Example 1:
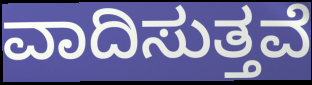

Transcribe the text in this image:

ವಾದಿಸುತ್ತವೆ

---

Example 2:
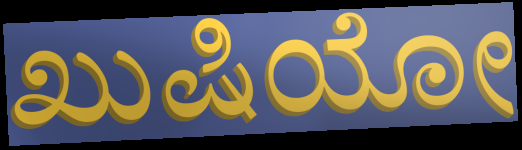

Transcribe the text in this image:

ಖುಷಿಯೋ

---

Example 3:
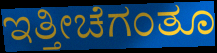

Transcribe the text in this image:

ಇತ್ತೀಚೆಗಂತೂ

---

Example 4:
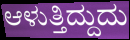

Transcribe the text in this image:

ಆಳುತ್ತಿದ್ದುದು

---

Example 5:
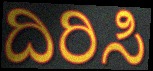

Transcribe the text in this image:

ದಿರಿಸಿ